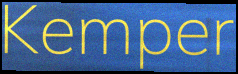
Kemper